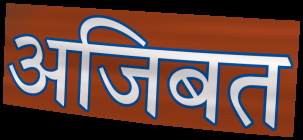
अजिबत